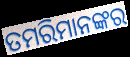
ତମରିମାନଙ୍କର